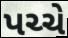
પચ્ચે